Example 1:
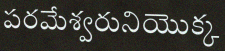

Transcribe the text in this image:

పరమేశ్వరునియొక్క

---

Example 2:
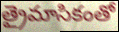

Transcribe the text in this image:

త్రైమాసికంతో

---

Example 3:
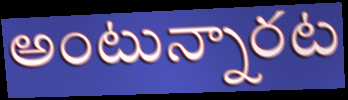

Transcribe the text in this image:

అంటున్నారట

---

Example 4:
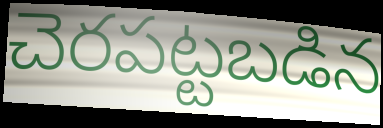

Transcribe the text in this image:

చెరపట్టబడిన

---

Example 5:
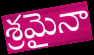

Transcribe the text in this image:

శ్రమైనా